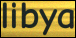
libya